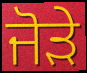
ਜੋਡ਼ੇ